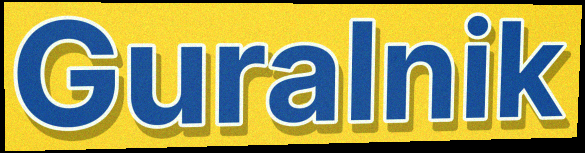
Guralnik